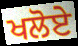
ਖਲੋਏ